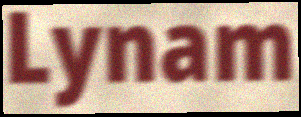
Lynam